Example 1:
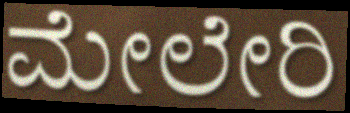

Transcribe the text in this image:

ಮೇಲೇರಿ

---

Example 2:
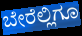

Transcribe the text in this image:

ಬೇರೆಲ್ಲಿಗೂ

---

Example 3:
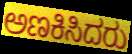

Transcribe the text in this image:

ಅಣಕಿಸಿದರು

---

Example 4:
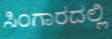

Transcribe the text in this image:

ಸಿಂಗಾರದಲ್ಲಿ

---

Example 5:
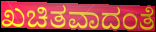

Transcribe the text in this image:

ಖಚಿತವಾದಂತೆ